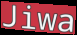
Jiwa